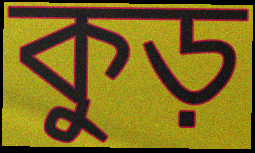
কুড়